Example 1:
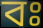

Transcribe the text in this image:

বঃ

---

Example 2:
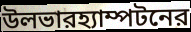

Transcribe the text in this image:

উলভারহ্যাম্পটনের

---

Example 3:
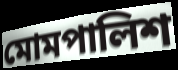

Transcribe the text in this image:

মোমপালিশ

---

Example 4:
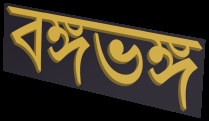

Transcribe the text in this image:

বঙ্গভঙ্গ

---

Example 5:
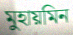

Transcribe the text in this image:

মুহায়মিন